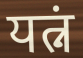
यत्नं